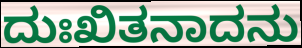
ದುಃಖಿತನಾದನು